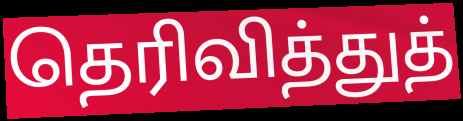
தெரிவித்துத்